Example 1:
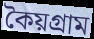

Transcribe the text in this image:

কৈয়গ্রাম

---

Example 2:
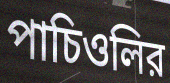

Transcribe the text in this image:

পাচিওলির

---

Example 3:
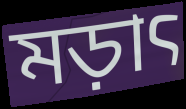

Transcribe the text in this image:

মড়াৎ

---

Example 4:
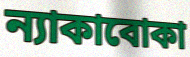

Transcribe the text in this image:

ন্যাকাবোকা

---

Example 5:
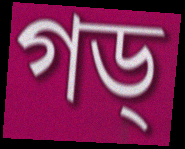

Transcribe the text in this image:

গড্